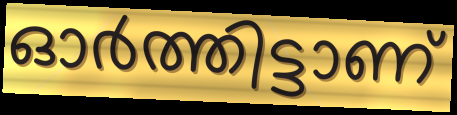
ഓർത്തിട്ടാണ്